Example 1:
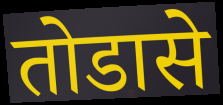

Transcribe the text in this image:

तोडासे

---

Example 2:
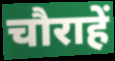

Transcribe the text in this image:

चौराहें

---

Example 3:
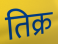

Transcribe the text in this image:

तिक्र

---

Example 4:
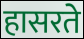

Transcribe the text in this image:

हासरते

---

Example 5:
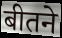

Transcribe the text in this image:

बीतने